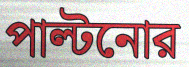
পাল্টনোর